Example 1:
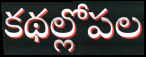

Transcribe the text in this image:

కథల్లోపల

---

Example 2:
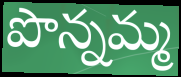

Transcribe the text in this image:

పొన్నమ్మ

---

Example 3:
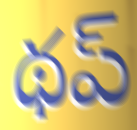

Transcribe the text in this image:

థప్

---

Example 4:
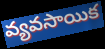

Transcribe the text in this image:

వ్యవసాయిక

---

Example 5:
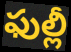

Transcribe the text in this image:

ఫుల్లీ